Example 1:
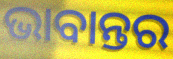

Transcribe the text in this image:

ଭାବାନ୍ତର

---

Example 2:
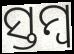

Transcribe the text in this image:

ସ୍ତମ୍ଵ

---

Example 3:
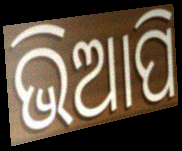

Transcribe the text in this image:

ଭିଆପି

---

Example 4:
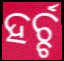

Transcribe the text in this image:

ହର୍ଚ୍ଚ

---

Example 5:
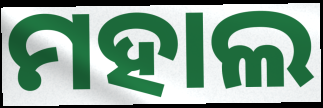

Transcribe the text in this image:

ମହାଲ